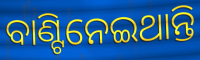
ବାଣ୍ଟିନେଇଥାନ୍ତି